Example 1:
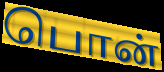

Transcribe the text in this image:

பொன்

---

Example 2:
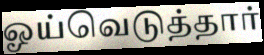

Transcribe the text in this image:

ஓய்வெடுத்தார்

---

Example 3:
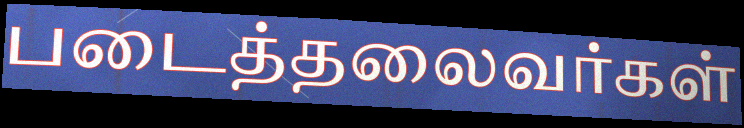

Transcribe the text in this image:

படைத்தலைவர்கள்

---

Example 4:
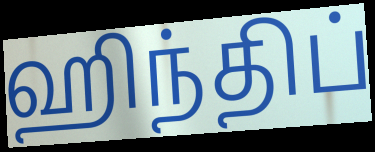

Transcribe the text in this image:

ஹிந்திப்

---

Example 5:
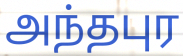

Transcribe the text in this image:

அந்தபுர